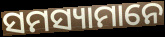
ସମସ୍ୟାମାନେ